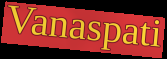
Vanaspati